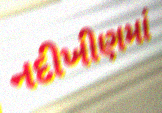
નદીખીણમાં